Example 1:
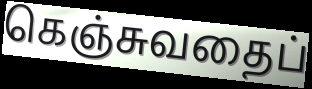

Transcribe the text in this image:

கெஞ்சுவதைப்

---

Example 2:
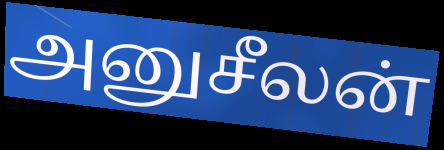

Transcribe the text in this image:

அனுசீலன்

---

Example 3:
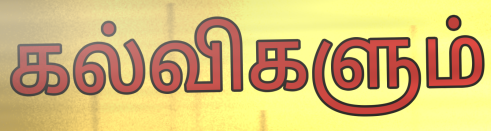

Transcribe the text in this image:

கல்விகளும்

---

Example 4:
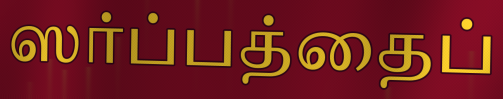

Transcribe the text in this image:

ஸர்ப்பத்தைப்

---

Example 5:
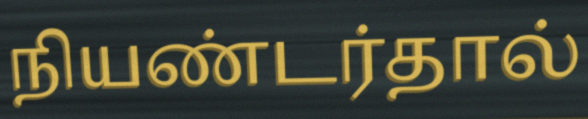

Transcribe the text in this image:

நியண்டர்தால்